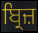
ਬ੍ਰਿਜ਼